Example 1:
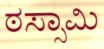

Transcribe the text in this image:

ಠಸ್ಸಾಮಿ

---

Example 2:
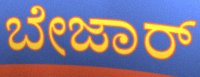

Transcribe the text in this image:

ಬೇಜಾರ್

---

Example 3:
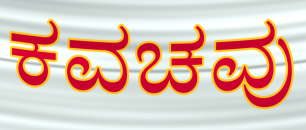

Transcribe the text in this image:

ಕವಚವು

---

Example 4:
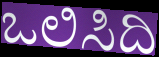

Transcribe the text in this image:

ಒಲಿಸಿದಿ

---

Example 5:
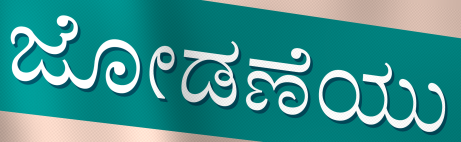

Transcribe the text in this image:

ಜೋಡಣೆಯು